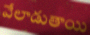
వేలాడుతాయి